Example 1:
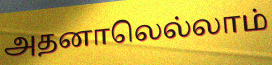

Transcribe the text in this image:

அதனாலெல்லாம்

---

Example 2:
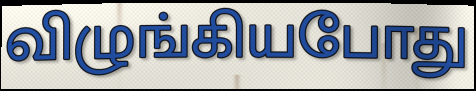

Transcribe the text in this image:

விழுங்கியபோது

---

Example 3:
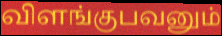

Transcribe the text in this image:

விளங்குபவனும்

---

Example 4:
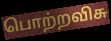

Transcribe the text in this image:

பொற்றவிசு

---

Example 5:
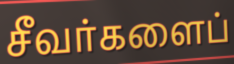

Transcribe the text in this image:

சீவர்களைப்